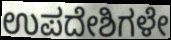
ಉಪದೇಶಿಗಳೇ